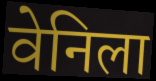
वेनिला